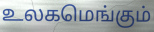
உலகமெங்கும்